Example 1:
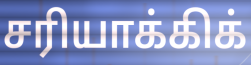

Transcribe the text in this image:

சரியாக்கிக்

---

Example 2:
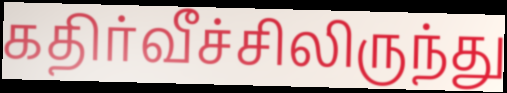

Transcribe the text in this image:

கதிர்வீச்சிலிருந்து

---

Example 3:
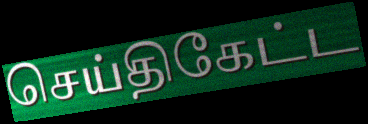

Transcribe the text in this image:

செய்திகேட்ட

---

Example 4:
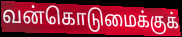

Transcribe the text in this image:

வன்கொடுமைக்குக்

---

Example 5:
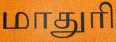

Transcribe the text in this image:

மாதுரி